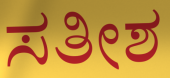
ಸತೀಶ